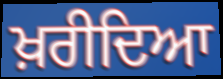
ਖ਼ਰੀਦਿਆ